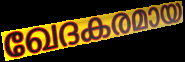
ഖേദകരമായ